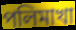
পলিমাখা